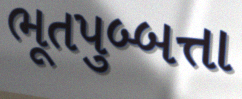
ભૂતપુબ્બત્તા